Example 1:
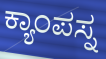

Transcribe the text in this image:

ಕ್ಯಾಂಪಸ್ನ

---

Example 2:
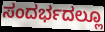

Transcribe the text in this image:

ಸಂದರ್ಭದಲ್ಲೂ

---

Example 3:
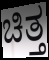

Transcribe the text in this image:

ಚಿತ್ತ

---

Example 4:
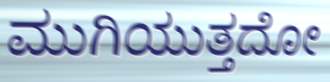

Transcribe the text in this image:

ಮುಗಿಯುತ್ತದೋ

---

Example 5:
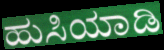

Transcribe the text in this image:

ಹುಸಿಯಾಡಿ